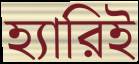
হ্যারিই